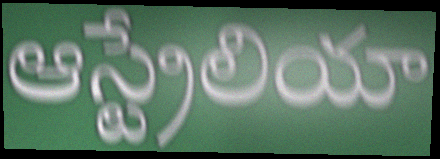
ఆస్ట్రేలియా